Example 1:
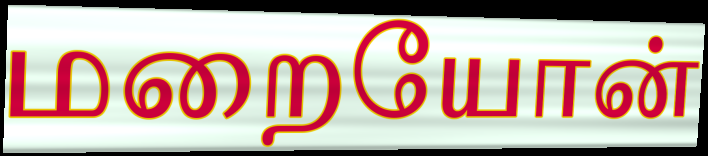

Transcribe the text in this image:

மறையோன்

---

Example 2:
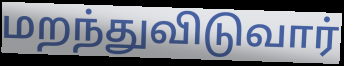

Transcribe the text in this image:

மறந்துவிடுவார்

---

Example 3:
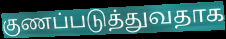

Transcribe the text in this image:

குணப்படுத்துவதாக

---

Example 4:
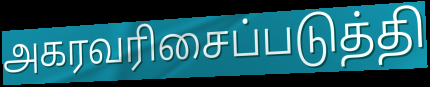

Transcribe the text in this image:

அகரவரிசைப்படுத்தி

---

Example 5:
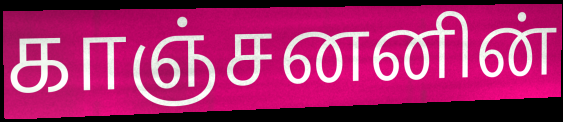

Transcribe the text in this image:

காஞ்சனனின்